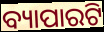
ବ୍ୟାପାରଟି